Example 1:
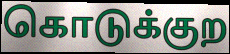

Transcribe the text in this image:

கொடுக்குற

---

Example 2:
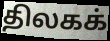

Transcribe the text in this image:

திலகக்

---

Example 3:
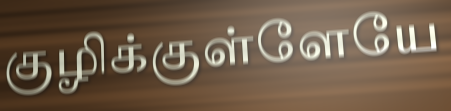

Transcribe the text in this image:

குழிக்குள்ளேயே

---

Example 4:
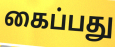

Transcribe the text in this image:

கைப்பது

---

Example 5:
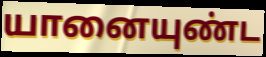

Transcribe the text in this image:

யானையுண்ட